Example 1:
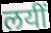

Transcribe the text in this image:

लयीं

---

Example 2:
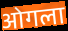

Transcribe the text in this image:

ओगला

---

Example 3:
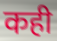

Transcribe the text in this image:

कही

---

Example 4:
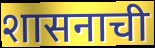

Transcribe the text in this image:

शासनाची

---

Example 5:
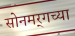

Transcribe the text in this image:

सोनमर्गच्या